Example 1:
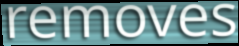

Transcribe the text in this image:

removes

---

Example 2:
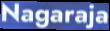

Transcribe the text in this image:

Nagaraja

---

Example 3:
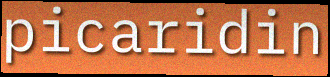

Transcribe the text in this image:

picaridin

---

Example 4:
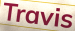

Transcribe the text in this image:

Travis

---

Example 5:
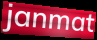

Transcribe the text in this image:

janmat